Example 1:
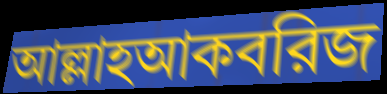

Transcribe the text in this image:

আল্লাহআকবরিজ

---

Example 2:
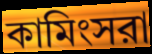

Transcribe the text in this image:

কামিংসরা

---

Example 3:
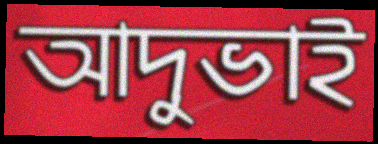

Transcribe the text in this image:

আদুভাই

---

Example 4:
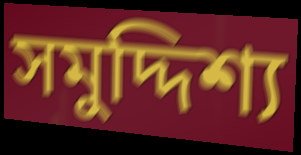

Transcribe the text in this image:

সমুদ্দিশ্য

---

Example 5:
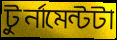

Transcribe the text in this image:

টুর্নামেন্টটা